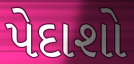
પેદાશો